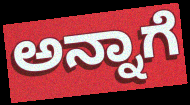
ಅನ್ನಾಗೆ